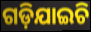
ଗଡ଼ିଯାଇଚି